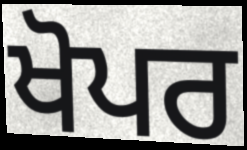
ਖੋਪਰ